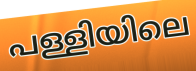
പള്ളിയിലെ